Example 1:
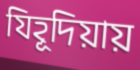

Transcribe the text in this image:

যিহূদিয়ায়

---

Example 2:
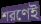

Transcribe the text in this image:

শরণেই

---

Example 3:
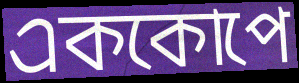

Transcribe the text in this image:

এককোপে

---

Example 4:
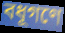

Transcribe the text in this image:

বধূগণে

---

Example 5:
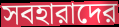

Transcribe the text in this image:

সবহারাদের